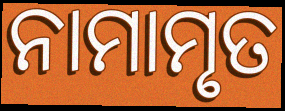
ନାମାମୃତ